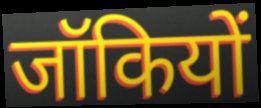
जॉकियों